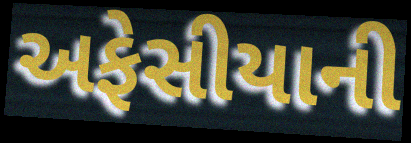
અફેસીયાની